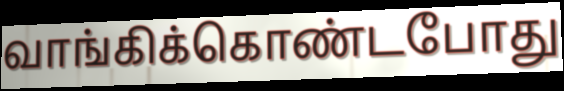
வாங்கிக்கொண்டபோது